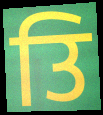
उि